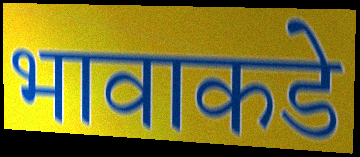
भावाकडे